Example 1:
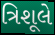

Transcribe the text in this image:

ત્રિશૂલે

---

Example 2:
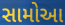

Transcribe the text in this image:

સામોઆ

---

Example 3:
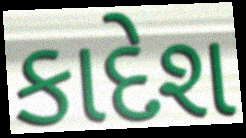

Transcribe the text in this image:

કાદેશ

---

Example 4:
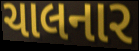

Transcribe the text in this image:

ચાલનાર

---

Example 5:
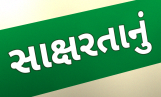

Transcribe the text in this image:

સાક્ષરતાનું